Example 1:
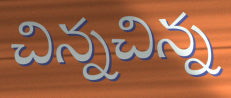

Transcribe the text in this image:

చిన్నచిన్న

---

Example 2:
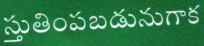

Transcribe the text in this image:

స్తుతింపబడునుగాక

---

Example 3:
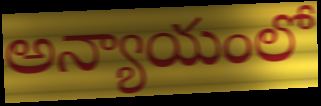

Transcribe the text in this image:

అన్యాయంలో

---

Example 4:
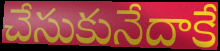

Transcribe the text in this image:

చేసుకునేదాకే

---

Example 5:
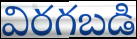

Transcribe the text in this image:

విరగబడి